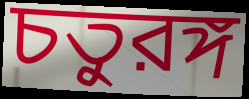
চতুরঙ্গ